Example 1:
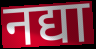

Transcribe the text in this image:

नद्या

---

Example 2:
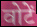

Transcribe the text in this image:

वोटें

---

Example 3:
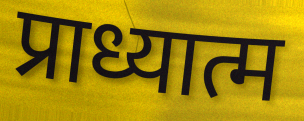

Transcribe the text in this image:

प्राध्यात्म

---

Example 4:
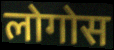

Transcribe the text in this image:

लोगोस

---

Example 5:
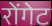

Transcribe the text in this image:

रोंगेट